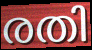
രതി